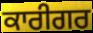
ਕਾਰੀਗਰ